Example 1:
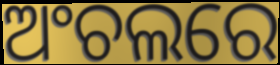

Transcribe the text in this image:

ଅଂଚଲରେ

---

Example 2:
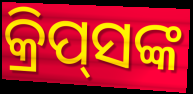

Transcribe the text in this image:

କ୍ରିପ୍‌ସଙ୍କ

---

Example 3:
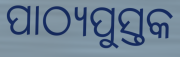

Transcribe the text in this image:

ପାଠ୍ୟପୁସ୍ତକ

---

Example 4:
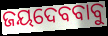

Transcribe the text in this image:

ଜୟଦେବବାବୁ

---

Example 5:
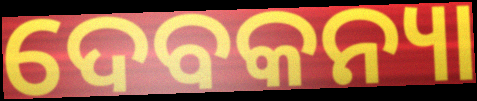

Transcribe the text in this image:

ଦେବକନ୍ୟା